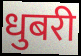
धुबरी